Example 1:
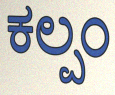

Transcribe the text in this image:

ಕಲ್ಪಂ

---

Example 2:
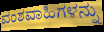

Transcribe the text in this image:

ವಂಶವಾಹಿಗಳನ್ನು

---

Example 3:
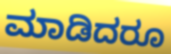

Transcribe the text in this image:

ಮಾಡಿದರೂ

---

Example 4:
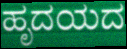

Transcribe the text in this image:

ಹೃದಯದ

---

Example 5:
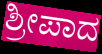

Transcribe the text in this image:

ಶ್ರೀಪಾದ